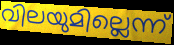
വിലയുമില്ലെന്ന്